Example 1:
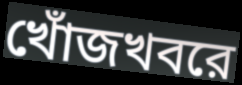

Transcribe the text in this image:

খোঁজখবরে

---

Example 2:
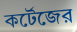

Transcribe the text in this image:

কর্টেজের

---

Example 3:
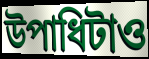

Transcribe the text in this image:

উপাধিটাও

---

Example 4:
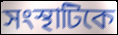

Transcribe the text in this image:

সংস্থাটিকে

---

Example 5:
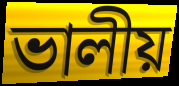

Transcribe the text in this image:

ভালীয়